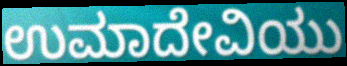
ಉಮಾದೇವಿಯು